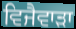
ਵਿਜੈਵਾੜਾ